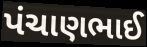
પંચાણભાઈ